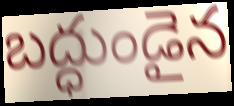
బద్ధుండైన